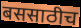
बससाठीच